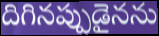
దిగినప్పుడైనను